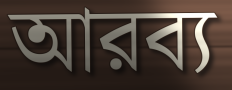
আরব্য